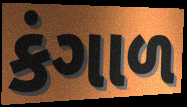
કંગાળ